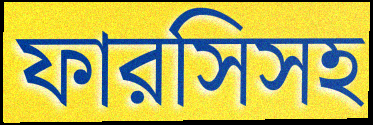
ফারসিসহ